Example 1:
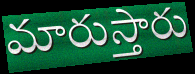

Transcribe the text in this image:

మారుస్తారు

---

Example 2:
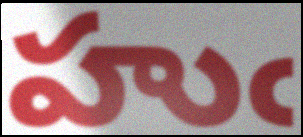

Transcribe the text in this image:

హుఁ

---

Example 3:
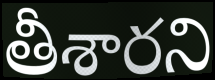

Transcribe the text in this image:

తీశారని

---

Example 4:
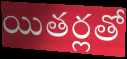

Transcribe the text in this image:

యితర్లతో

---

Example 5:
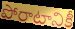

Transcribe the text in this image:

పోరాటానికీ